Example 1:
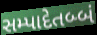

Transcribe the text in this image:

સમ્પાદેતબ્બં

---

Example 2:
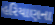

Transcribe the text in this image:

હરિયાણના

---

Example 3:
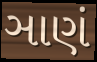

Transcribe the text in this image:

ઞાણં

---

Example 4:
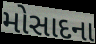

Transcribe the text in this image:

મોસાદના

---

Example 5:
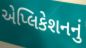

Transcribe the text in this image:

એપ્લિકેશનનું